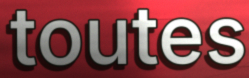
toutes